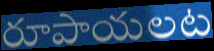
రూపాయలట